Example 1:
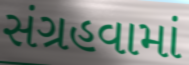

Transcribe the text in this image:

સંગ્રહવામાં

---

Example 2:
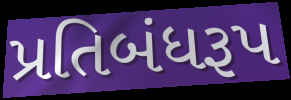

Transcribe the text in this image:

પ્રતિબંધરૂપ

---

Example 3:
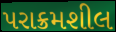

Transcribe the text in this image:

પરાક્રમશીલ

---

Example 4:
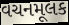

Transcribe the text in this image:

વચનમૂલક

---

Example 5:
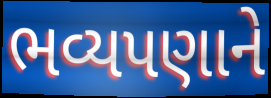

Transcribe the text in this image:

ભવ્યપણાને